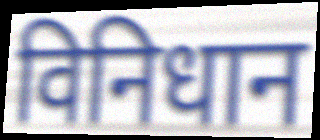
विनिधान